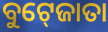
ବୁଟ୍‍ଜୋତା